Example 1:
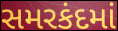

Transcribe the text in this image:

સમરકંદમાં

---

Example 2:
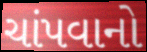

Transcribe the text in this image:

ચાંપવાનો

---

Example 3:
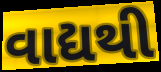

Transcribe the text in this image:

વાદ્યથી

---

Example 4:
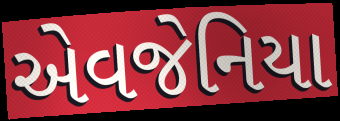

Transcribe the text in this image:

એવજેનિયા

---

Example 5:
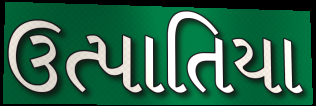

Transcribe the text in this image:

ઉત્પાતિયા